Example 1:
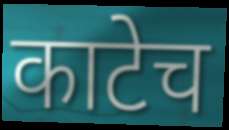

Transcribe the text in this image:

काटेच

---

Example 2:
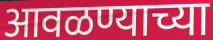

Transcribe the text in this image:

आवळण्याच्या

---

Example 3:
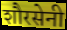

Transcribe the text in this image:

शौरसेनी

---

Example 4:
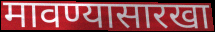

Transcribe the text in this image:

मावण्यासारखा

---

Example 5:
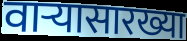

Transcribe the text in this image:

वाऱ्यासारख्या